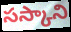
సస్కాని